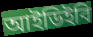
আইডিইবি